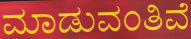
ಮಾಡುವಂತಿವೆ